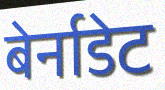
बेर्नाडेट